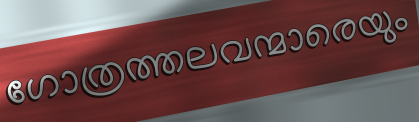
ഗോത്രത്തലവന്മാരെയും